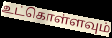
உட்கொள்ளவும்